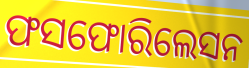
ଫସଫୋରିଲେସନ